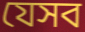
যেসব